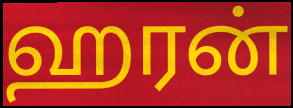
ஹரன்